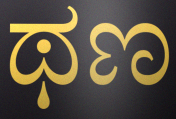
ಥಣ